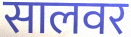
सालवर